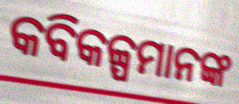
କବିକଳ୍ପମାନଙ୍କ